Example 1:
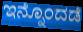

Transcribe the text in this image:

ಇನ್ನೊಂದಡೆ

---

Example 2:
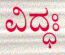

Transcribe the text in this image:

ವಿದ್ಧಃ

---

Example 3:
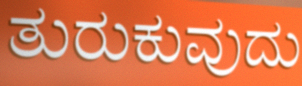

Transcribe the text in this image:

ತುರುಕುವುದು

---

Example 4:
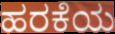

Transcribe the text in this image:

ಹರಕೆಯ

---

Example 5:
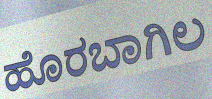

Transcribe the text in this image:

ಹೊರಬಾಗಿಲ